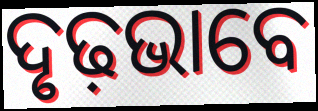
ଦୃଢ଼ଭାବେ